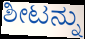
ಶೀಟನ್ನು